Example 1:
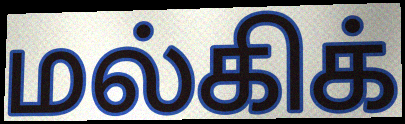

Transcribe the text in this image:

மல்கிக்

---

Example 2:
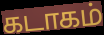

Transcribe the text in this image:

கடாகம்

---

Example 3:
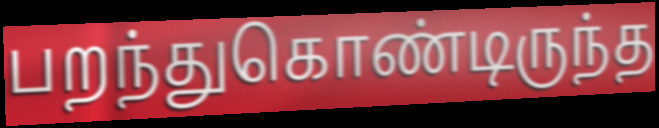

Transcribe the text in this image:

பறந்துகொண்டிருந்த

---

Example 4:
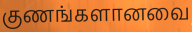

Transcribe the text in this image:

குணங்களானவை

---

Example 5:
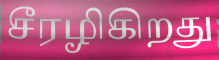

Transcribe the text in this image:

சீரழிகிறது